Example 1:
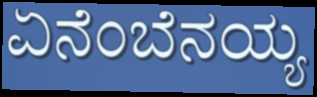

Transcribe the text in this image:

ಏನೆಂಬೆನಯ್ಯ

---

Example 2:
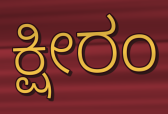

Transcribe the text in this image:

ಕ್ಷೀರಂ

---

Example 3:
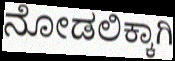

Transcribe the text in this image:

ನೋಡಲಿಕ್ಕಾಗಿ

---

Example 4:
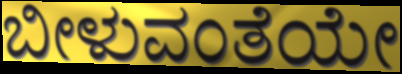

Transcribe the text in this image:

ಬೀಳುವಂತೆಯೇ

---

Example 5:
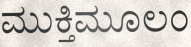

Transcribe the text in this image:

ಮುಕ್ತಿಮೂಲಂ